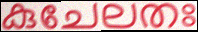
കുചേലതഃ